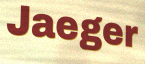
Jaeger